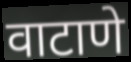
वाटाणे